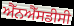
ਐੱਨਐੱਸਡੀਸੀ